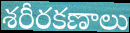
శరీరకణాలు